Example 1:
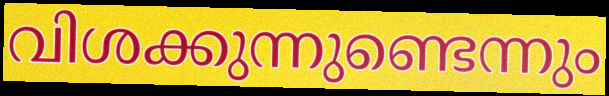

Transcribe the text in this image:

വിശക്കുന്നുണ്ടെന്നും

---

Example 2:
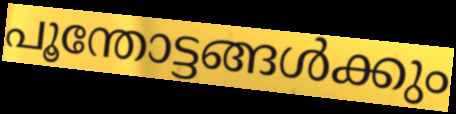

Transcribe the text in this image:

പൂന്തോട്ടങ്ങൾക്കും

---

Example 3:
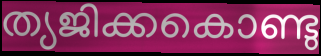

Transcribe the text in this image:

ത്യജിക്കകൊണ്ടു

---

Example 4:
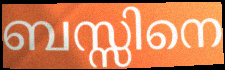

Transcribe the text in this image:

ബസ്സിനെ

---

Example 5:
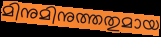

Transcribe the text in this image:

മിനുമിനുത്തതുമായ